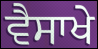
ਵੈਸਾਖੇ